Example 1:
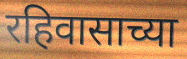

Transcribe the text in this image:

रहिवासाच्या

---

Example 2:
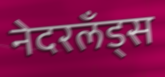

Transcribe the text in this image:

नेदरलँड्स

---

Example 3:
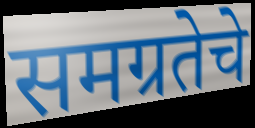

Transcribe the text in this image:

समग्रतेचे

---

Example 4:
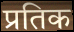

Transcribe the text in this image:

प्रतिक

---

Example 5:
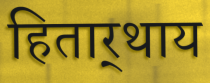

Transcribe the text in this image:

हितार्थाय